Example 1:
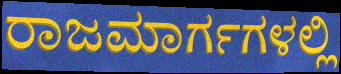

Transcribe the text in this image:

ರಾಜಮಾರ್ಗಗಳಲ್ಲಿ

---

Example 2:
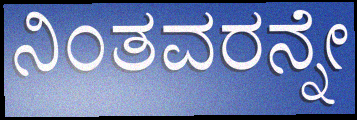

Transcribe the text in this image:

ನಿಂತವರನ್ನೇ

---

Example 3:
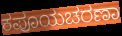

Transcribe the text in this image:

ಕಪೂಯಚರಣಾ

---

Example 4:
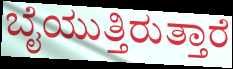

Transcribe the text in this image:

ಬೈಯುತ್ತಿರುತ್ತಾರೆ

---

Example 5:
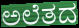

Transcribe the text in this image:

ಅಲೆತದ